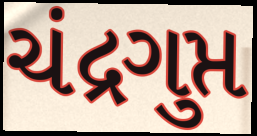
ચંદ્રગુપ્ત